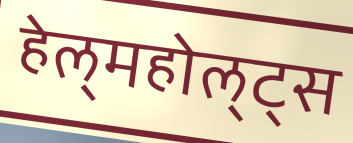
हेल्महोल्ट्स